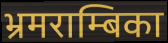
भ्रमराम्बिका